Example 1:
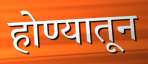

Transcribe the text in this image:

होण्यातून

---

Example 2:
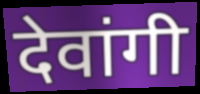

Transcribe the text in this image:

देवांगी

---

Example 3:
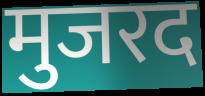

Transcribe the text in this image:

मुजरद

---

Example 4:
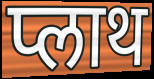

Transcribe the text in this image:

प्लाथ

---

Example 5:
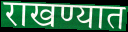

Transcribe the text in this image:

राखण्यात